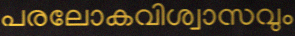
പരലോകവിശ്വാസവും